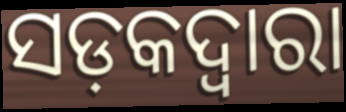
ସଡ଼କଦ୍ୱାରା